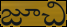
జూచి